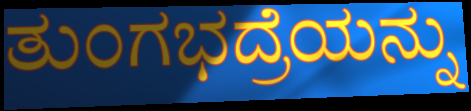
ತುಂಗಭದ್ರೆಯನ್ನು